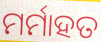
ମର୍ମାହତ